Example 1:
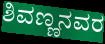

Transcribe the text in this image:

ಶಿವಣ್ಣನವರ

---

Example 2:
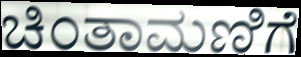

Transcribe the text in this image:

ಚಿಂತಾಮಣಿಗೆ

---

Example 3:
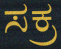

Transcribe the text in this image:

ಸಕ್ರ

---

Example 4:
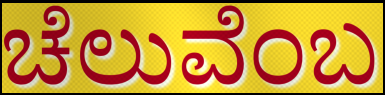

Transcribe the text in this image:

ಚೆಲುವೆಂಬ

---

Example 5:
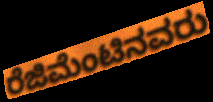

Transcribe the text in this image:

ರೆಜಿಮೆಂಟಿನವರು